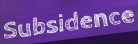
Subsidence